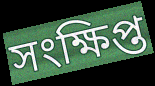
সংক্ষিপ্ত